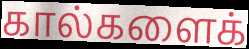
கால்களைக்